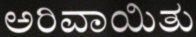
ಅರಿವಾಯಿತು